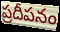
ప్రదీపనం